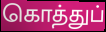
கொத்துப்